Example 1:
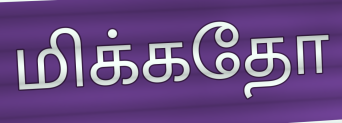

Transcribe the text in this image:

மிக்கதோ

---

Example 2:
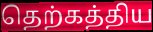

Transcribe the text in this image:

தெற்கத்திய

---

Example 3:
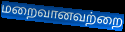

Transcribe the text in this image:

மறைவானவற்றை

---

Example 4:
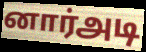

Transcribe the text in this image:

னார்அடி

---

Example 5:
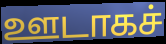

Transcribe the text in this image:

ஊடாகச்